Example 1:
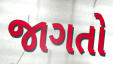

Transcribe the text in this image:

જાગતો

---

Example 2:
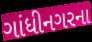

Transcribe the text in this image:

ગાંધીનગરના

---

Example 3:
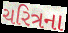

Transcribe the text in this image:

ચરિત્રના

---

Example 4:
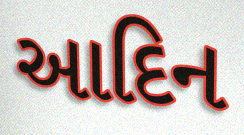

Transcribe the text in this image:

આદિન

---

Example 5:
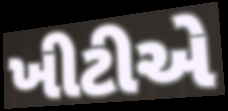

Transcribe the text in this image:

ખીટીએ